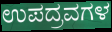
ಉಪದ್ರವಗಳ